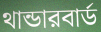
থান্ডারবার্ড